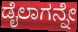
ಡೈಲಾಗನ್ನೇ